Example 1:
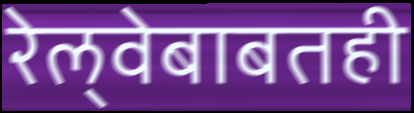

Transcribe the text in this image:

रेल्वेबाबतही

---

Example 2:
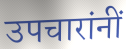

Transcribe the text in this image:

उपचारांनीं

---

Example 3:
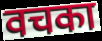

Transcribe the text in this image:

वचका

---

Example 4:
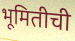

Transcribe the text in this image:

भूमितीची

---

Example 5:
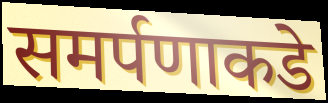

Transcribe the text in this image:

समर्पणाकडे